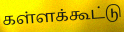
கள்ளக்கூட்டு